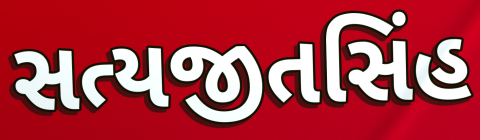
સત્યજીતસિંહ